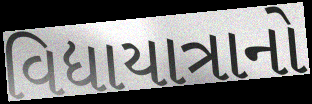
વિદ્યાયાત્રાનો